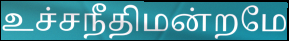
உச்சநீதிமன்றமே